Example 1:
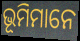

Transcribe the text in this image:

ଭୂମିମାନେ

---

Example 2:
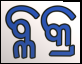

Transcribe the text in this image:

ବ୍ଳକ୍ର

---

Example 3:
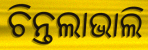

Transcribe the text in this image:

ଚିନ୍ତଲାଭାଲି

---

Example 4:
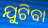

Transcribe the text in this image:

ଯୁଟିବା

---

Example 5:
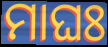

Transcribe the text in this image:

ମାଘଃ